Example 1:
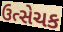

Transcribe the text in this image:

ઉત્સેચક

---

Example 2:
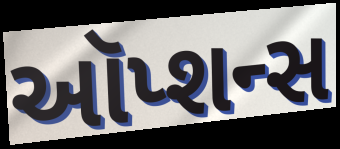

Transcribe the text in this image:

ઑપ્શન્સ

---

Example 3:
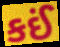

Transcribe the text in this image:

કઈં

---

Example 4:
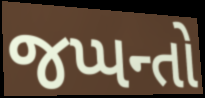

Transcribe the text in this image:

જપ્પન્તો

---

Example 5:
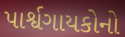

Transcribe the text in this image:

પાર્શ્વગાયકોનો